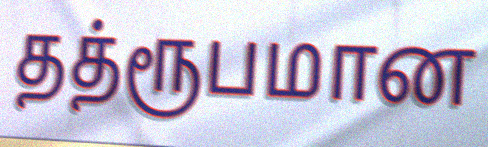
தத்ரூபமான